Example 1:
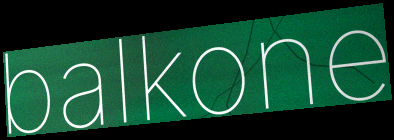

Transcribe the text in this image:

balkone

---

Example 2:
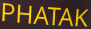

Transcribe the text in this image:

PHATAK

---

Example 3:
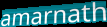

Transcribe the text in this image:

amarnath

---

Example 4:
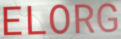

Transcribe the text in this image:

ELORG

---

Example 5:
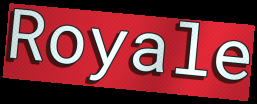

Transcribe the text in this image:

Royale